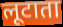
लूटाता